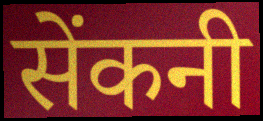
सेंकनी